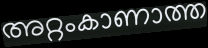
അറ്റംകാണാത്ത